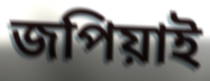
জপিয়াই